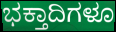
ಭಕ್ತಾದಿಗಳೂ